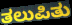
ತಲುಪಿತು